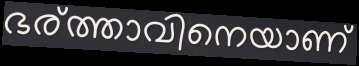
ഭര്ത്താവിനെയാണ്